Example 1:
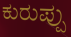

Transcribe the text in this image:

ಕುರುಪ್ಪು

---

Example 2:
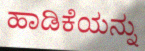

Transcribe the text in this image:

ಹಾಡಿಕೆಯನ್ನು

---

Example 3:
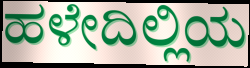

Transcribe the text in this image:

ಹಳೇದಿಲ್ಲಿಯ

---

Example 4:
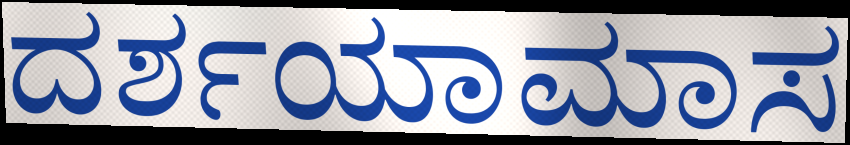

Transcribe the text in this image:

ದರ್ಶಯಾಮಾಸ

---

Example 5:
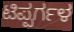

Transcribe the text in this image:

ಟಿಪ್ಪರ್ಗಳ